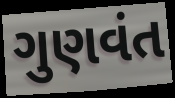
ગુણવંત